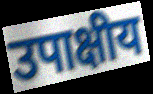
उपाक्षीय